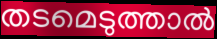
തടമെടുത്താൽ